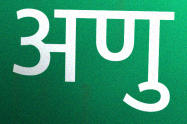
अणु